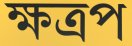
ক্ষত্রপ